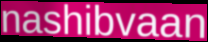
nashibvaan